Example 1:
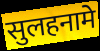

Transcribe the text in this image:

सुलहनामे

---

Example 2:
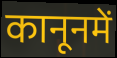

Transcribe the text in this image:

कानूनमें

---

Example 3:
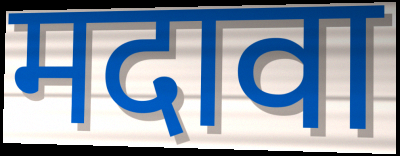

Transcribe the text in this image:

मदावा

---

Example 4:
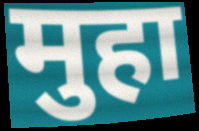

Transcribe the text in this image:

मुहा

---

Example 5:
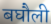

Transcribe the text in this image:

बघौली